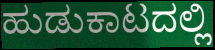
ಹುಡುಕಾಟದಲ್ಲಿ